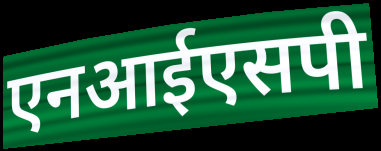
एनआईएसपी